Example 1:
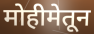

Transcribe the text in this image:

मोहीमेतून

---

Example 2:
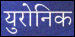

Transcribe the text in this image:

युरोनिक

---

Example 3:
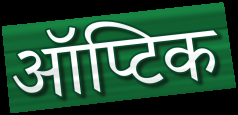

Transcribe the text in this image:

ऑप्टिक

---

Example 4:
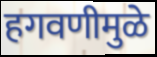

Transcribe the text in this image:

हगवणीमुळे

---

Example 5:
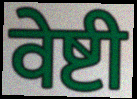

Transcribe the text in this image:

वेष्टी